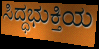
ಸಿದ್ಧಭುಕ್ತಿಯ